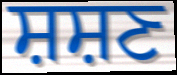
ਸ਼ਸ਼ਣ